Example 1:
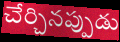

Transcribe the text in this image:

చేర్చినప్పుడు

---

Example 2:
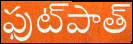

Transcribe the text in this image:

ఫుట్‌పాత్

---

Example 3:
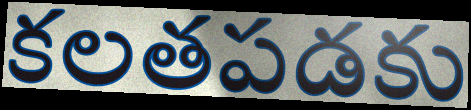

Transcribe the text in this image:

కలతపడకు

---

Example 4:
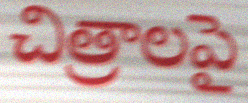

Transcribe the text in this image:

చిత్రాలపై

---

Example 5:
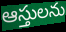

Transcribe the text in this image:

ఆస్తులను